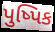
પુષ્પિક